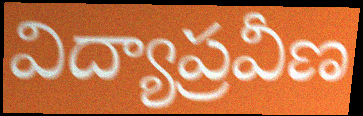
విద్యాప్రవీణ